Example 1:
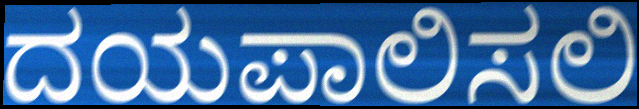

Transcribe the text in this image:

ದಯಪಾಲಿಸಲಿ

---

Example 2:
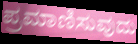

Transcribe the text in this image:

ಪ್ರಮಾಣಿಸುವುದು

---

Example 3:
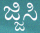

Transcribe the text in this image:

ಜ್ಜಿಸಿ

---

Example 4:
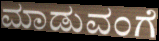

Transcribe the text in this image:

ಮಾಡುವಂಗೆ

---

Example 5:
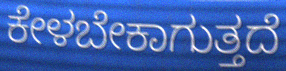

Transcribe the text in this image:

ಕೇಳಬೇಕಾಗುತ್ತದೆ